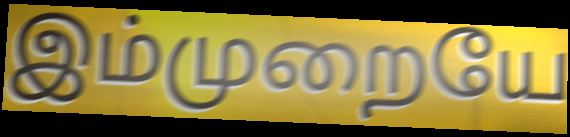
இம்முறையே